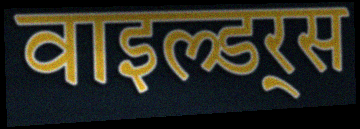
वाइल्डर्स